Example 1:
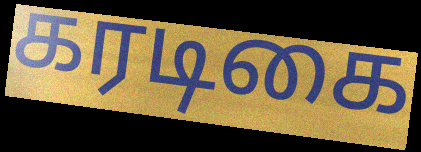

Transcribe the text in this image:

கரடிகை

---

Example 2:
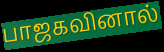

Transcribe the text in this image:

பாஜகவினால்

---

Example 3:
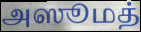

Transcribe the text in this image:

அஸூமத்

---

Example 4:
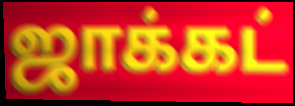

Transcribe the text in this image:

ஜாக்கட்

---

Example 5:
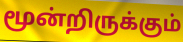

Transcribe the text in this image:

மூன்றிருக்கும்